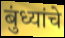
बुंध्यांचे